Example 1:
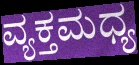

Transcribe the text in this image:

ವ್ಯಕ್ತಮಧ್ಯ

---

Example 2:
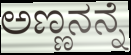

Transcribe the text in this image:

ಅಣ್ಣನನ್ನೆ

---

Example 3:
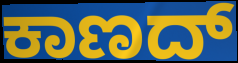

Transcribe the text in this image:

ಕಾಣದ್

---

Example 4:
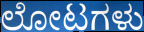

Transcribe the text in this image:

ಲೋಟಗಳು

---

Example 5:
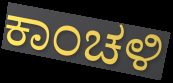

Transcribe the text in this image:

ಕಾಂಚಳಿ